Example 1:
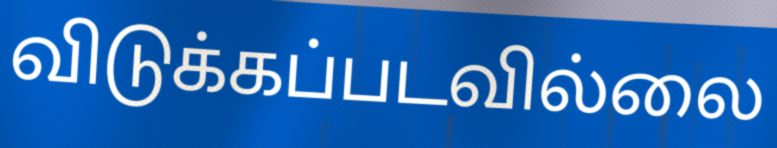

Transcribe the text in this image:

விடுக்கப்படவில்லை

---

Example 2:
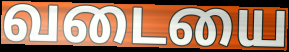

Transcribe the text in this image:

வடையை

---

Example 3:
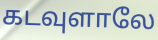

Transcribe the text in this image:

கடவுளாலே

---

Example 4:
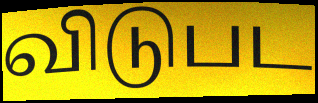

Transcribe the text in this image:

விடுபட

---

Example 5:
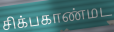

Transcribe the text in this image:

சிக்பகாண்மட